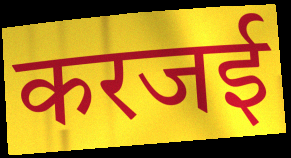
करजई